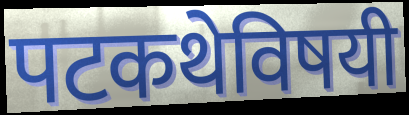
पटकथेविषयी